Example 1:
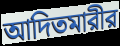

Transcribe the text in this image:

আদিতমারীর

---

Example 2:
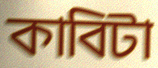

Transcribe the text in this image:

কাবিটা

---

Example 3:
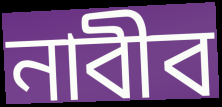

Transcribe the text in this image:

নাবীব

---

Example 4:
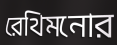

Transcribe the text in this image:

রেথিমনোর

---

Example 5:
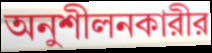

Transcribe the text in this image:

অনুশীলনকারীর